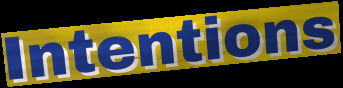
Intentions